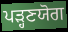
ਪੜ੍ਹਣਯੋਗ